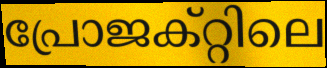
പ്രോജക്റ്റിലെ